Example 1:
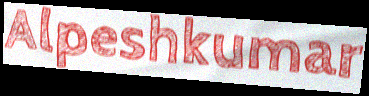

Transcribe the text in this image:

Alpeshkumar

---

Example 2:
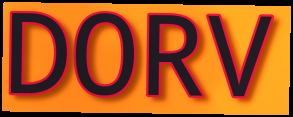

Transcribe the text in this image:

DORV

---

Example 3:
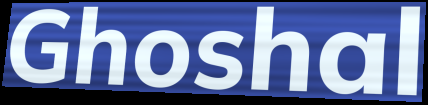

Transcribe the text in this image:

Ghoshal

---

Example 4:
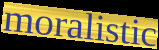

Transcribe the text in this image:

moralistic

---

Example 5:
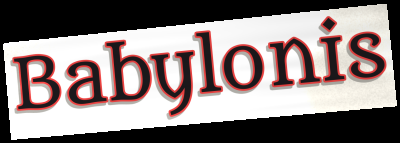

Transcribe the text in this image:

Babylonis